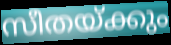
സീതയ്ക്കും